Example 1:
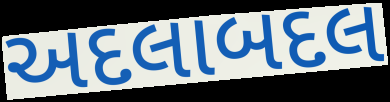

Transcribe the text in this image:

અદલાબદલ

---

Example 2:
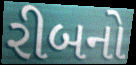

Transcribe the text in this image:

રીબનો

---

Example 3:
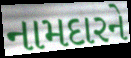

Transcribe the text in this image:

નામદારને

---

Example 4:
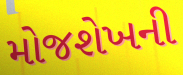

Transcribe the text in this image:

મોજશેખની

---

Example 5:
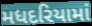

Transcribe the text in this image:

મધદરિયામાં